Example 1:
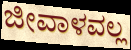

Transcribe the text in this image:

ಜೀವಾಳವಲ್ಲ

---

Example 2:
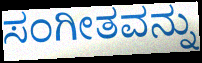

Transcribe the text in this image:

ಸಂಗೀತವನ್ನು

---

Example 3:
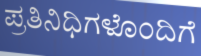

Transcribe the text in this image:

ಪ್ರತಿನಿಧಿಗಳೊಂದಿಗೆ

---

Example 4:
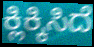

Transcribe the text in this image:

ಕ್ಲಿಕ್ಕಿಸಿದೆ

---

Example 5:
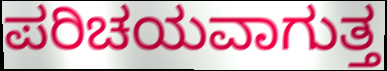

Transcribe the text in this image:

ಪರಿಚಯವಾಗುತ್ತ